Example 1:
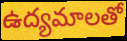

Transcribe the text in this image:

ఉద్యమాలతో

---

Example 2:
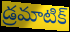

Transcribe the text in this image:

డ్రమాటిక్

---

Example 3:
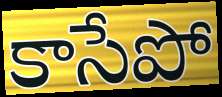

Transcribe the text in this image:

కాసేపో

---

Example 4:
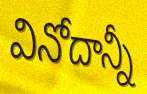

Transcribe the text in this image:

వినోదాన్నీ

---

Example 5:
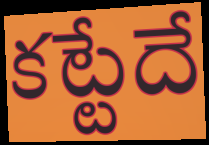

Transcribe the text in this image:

కట్టేదే